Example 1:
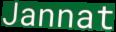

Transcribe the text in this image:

Jannat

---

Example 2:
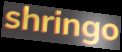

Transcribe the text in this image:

shringo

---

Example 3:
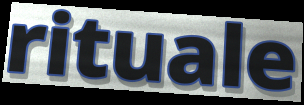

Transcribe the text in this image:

rituale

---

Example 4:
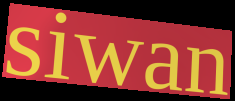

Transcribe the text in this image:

siwan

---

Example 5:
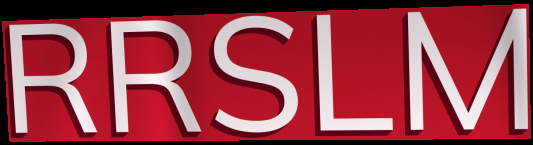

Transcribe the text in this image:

RRSLM